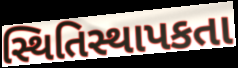
સ્થિતિસ્થાપકતા